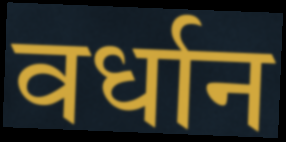
वर्धान